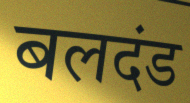
बलदंड